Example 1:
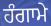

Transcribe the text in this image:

ਹੰਗਾਮੇ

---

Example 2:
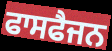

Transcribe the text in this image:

ਫਾਸਫੈਜਨ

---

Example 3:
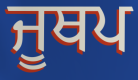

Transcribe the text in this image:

ਜੂਥਪ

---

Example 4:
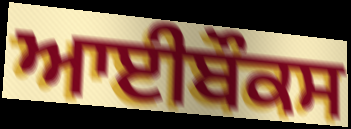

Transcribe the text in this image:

ਆਈਬੌਕਸ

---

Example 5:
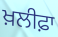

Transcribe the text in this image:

ਖ਼ਲੀਫ਼ਾ